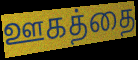
ஊகத்தை